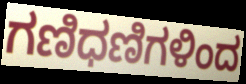
ಗಣಿಧಣಿಗಳಿಂದ